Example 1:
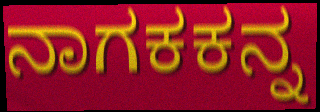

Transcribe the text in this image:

ನಾಗಕಕನ್ನ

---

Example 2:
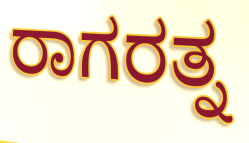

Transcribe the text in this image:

ರಾಗರತ್ನ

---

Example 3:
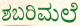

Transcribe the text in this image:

ಶಬರಿಮಲೆ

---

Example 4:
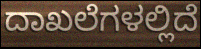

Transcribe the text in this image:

ದಾಖಲೆಗಳಲ್ಲಿದೆ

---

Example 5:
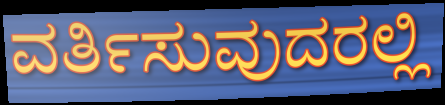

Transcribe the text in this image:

ವರ್ತಿಸುವುದರಲ್ಲಿ